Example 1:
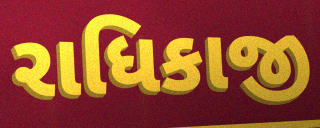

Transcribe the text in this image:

રાધિકાજી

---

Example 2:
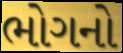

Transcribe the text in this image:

ભોગનો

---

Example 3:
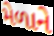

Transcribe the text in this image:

મેળાને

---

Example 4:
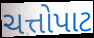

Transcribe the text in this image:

ચત્તોપાટ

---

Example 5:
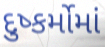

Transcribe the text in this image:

દુષ્કર્મોમાં